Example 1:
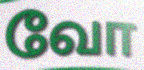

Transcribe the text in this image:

வோ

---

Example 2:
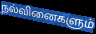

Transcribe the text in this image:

நல்வினைகளும்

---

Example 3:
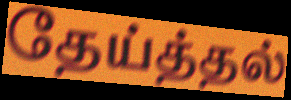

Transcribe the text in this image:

தேய்த்தல்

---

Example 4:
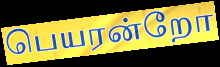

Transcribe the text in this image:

பெயரன்றோ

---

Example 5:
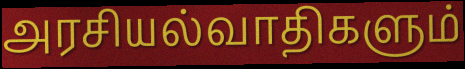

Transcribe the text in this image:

அரசியல்வாதிகளும்